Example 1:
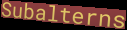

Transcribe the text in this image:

Subalterns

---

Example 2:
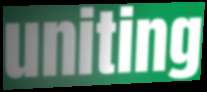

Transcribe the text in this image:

uniting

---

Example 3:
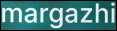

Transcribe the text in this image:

margazhi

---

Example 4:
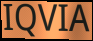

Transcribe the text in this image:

IQVIA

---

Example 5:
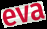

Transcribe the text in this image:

eva